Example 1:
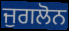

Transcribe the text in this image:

ਜੁਗਲੋਨ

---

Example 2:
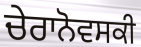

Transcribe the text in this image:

ਚੇਰਾਨੋਵਸਕੀ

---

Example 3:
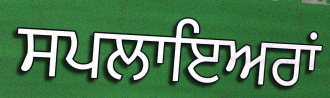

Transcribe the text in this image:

ਸਪਲਾਇਅਰਾਂ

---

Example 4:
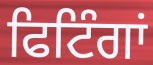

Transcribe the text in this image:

ਫਿਟਿੰਗਾਂ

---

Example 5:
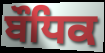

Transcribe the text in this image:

ਬੌਧਿਕ